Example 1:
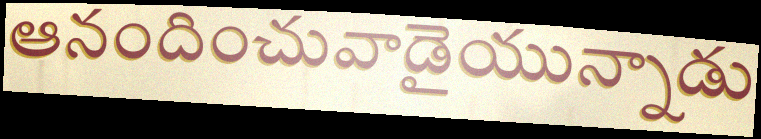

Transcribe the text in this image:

ఆనందించువాడైయున్నాడు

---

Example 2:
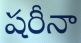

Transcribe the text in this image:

షరీనా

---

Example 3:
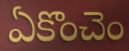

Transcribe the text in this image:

ఏకొంచెం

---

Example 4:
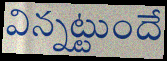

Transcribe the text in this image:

విన్నట్టుందే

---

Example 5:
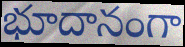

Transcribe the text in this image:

భూదానంగా